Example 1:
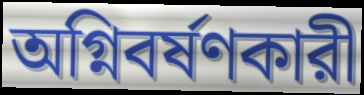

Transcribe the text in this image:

অগ্নিবর্ষণকারী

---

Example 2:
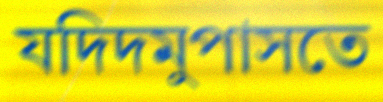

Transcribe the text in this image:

যদিদমুপাসতে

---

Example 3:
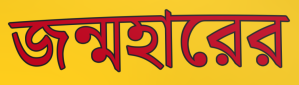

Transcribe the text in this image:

জন্মহারের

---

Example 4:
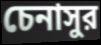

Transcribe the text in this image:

চেনাসুর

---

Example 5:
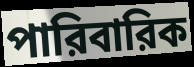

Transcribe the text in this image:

পারিবারিক